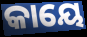
କାୟେ